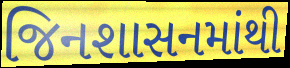
જિનશાસનમાંથી